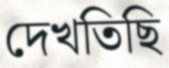
দেখতিছি